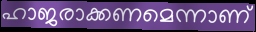
ഹാജരാക്കണമെന്നാണ്